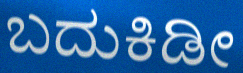
ಬದುಕಿಡೀ